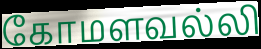
கோமளவல்லி